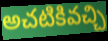
అచటికివచ్చి